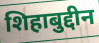
शिहाबुद्दीन